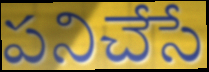
పనిచేసే